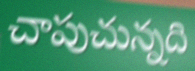
చాపుచున్నది